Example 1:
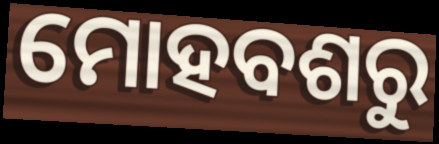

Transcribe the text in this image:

ମୋହବଶରୁ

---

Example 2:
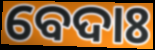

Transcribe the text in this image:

ବେଦାଃ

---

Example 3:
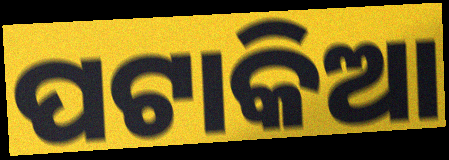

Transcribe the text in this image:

ପଟାକିଆ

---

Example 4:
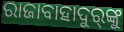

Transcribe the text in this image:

ରାଜାବାହାଦୁର୍‍ଙ୍କୁ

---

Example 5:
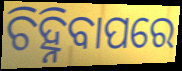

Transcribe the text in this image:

ଚିହ୍ନିବାପରେ